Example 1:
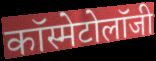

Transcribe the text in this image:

कॉस्मेटोलॉजी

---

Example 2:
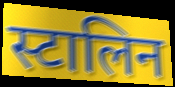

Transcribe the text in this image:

स्टालिन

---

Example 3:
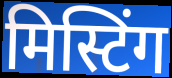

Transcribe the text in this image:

मिस्टिंग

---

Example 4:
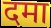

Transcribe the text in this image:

दमा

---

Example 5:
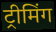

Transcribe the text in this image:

ट्रीमिंग